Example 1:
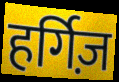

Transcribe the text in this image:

हर्गिज़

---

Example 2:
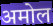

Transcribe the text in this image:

अमोल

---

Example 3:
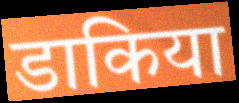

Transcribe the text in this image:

डाकिया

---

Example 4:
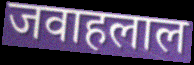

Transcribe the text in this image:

जवाहलाल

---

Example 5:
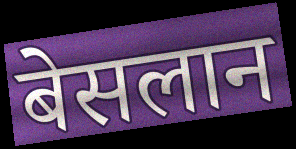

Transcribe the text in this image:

बेसलान